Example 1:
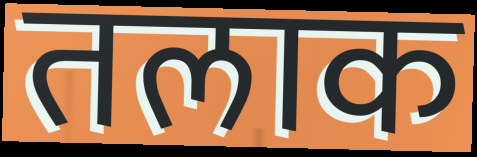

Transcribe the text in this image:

तलाक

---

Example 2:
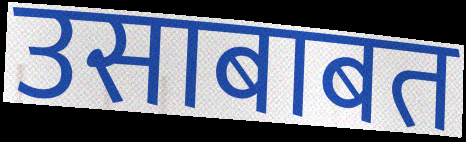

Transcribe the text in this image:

उसाबाबत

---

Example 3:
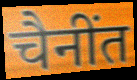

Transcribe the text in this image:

चैनींत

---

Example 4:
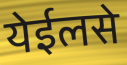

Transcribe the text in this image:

येईलसे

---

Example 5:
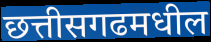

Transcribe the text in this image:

छत्तीसगढमधील